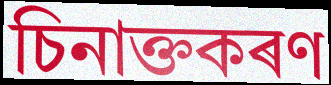
চিনাক্তকৰণ